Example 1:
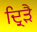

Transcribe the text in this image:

ਦ੍ਰਿੜੈ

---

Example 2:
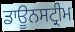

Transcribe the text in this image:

ਡਾਊਨਸਟ੍ਰੀਮ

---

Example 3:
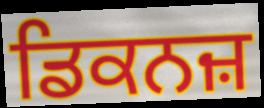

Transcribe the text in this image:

ਡਿਕਨਜ਼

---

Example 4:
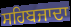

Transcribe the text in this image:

ਸਹਿਬਜਾਦਾ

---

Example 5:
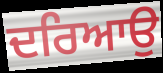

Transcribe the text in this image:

ਦਰਿਆਉ